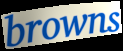
browns